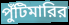
পুঁটিমারির